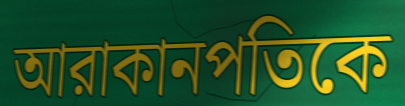
আরাকানপতিকে